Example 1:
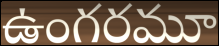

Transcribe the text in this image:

ఉంగరమూ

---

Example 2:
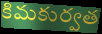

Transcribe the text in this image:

కిమకుర్వత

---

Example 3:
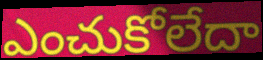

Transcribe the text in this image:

ఎంచుకోలేదా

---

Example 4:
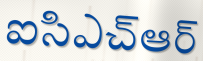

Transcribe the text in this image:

ఐసిఎచ్ఆర్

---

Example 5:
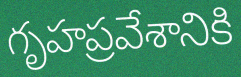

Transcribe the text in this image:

గృహప్రవేశానికి